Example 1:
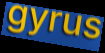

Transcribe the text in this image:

gyrus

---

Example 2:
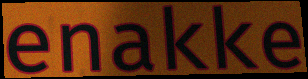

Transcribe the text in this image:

enakke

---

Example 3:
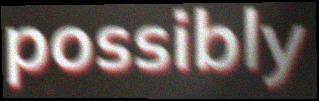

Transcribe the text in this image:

possibly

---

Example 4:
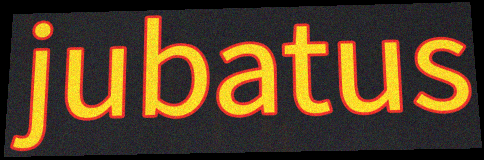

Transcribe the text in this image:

jubatus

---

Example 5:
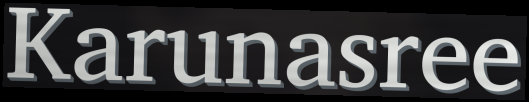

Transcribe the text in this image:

Karunasree